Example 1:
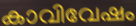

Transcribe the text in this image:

കാവിവേഷം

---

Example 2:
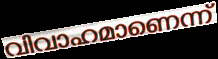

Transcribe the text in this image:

വിവാഹമാണെന്ന്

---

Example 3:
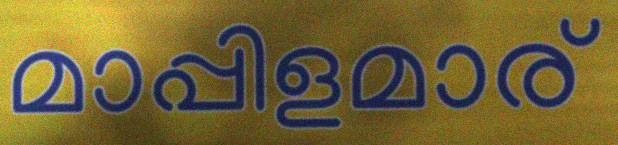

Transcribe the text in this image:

മാപ്പിളമാര്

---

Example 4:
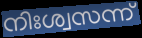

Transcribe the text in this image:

നിഃശ്വസന്ന്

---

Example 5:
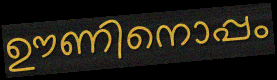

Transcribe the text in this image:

ഊണിനൊപ്പം